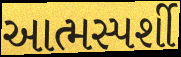
આત્મસ્પર્શી